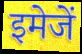
इमेजें